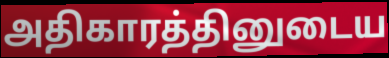
அதிகாரத்தினுடைய